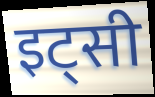
इट्सी